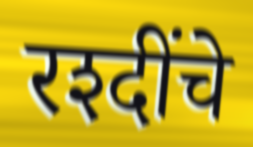
रश्दींचे